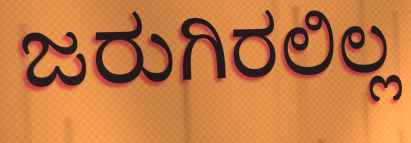
ಜರುಗಿರಲಿಲ್ಲ